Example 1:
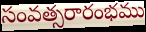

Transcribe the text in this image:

సంవత్సరారంభము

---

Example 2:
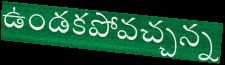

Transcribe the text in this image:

ఉండకపోవచ్చన్న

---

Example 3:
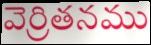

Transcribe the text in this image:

వెర్రితనము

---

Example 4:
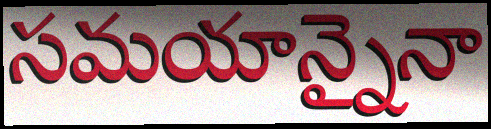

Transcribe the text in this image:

సమయాన్నైనా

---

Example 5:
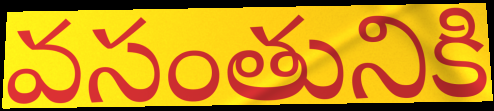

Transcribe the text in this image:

వసంతునికి